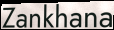
Zankhana